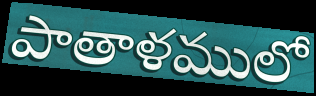
పాతాళములో